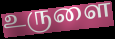
உருளை